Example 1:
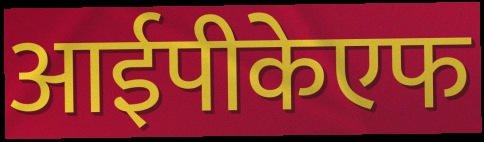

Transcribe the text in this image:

आईपीकेएफ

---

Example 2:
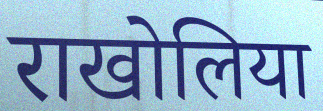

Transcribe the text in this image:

राखोलिया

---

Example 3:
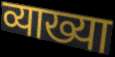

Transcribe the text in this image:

व्याख्‍या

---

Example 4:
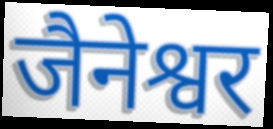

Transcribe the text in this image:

जैनेश्वर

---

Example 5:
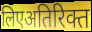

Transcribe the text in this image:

लिएअतिरिक्त